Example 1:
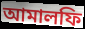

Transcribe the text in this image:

আমালফি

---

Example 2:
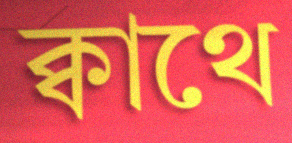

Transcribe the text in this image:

ক্বাথে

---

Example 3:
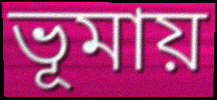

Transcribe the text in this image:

ভূমায়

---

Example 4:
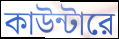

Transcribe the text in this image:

কাউন্টারে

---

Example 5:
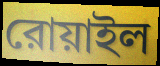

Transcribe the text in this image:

রোয়াইল